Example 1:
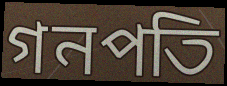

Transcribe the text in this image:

গনপতি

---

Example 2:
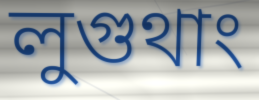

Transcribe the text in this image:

লুগুথাং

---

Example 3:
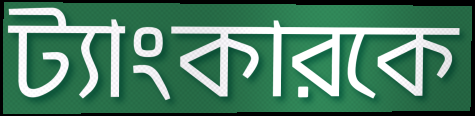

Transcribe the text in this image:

ট্যাংকারকে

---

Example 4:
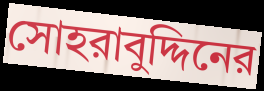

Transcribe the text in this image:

সোহরাবুদ্দিনের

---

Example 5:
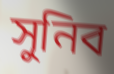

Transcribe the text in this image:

সুনিব